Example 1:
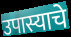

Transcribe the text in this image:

उपास्याचे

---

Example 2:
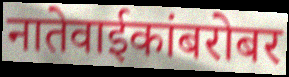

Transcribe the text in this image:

नातेवाईकांबरोबर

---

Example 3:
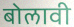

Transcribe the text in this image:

बोलावी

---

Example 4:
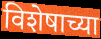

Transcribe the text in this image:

विशेषाच्या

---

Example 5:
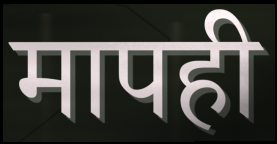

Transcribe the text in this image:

मापही